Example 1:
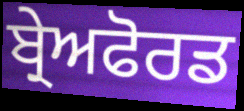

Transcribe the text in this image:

ਬ੍ਰੇਅਫੋਰਡ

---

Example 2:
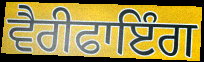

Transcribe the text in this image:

ਵੈਰੀਫਾਇੰਗ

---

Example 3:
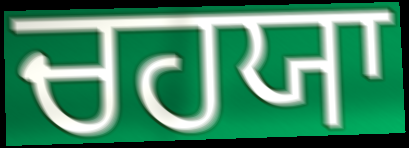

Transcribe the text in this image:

ਚਹਯਾ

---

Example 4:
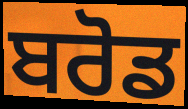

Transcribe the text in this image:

ਬਰੋਡ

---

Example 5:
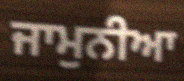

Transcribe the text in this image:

ਜਾਮੁਨੀਆ